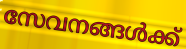
സേവനങ്ങൾക്ക്